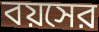
বয়সের